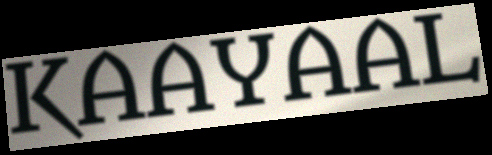
KAAYAAL